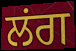
ਲਂਗ